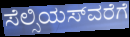
ಸೆಲ್ಸಿಯಸ್‍ವರೆಗೆ